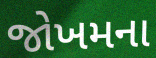
જોખમના